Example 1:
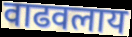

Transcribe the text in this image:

वाढवलाय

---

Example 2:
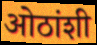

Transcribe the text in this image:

ओठांशी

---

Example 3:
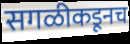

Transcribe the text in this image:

सगळीकडूनच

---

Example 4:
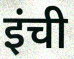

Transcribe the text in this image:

इंची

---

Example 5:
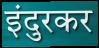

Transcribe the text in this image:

इंदुरकर